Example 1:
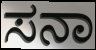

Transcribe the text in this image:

ಸನಾ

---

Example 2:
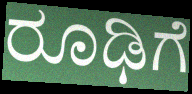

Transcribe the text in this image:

ರೂಢಿಗೆ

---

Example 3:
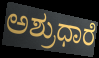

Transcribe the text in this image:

ಅಶ್ರುಧಾರೆ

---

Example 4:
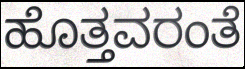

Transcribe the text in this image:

ಹೊತ್ತವರಂತೆ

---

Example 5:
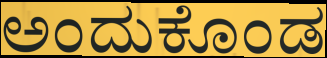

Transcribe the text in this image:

ಅಂದುಕೊಂಡ